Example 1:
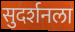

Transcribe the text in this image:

सुदर्शनला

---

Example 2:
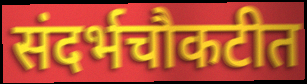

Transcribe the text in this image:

संदर्भचौकटीत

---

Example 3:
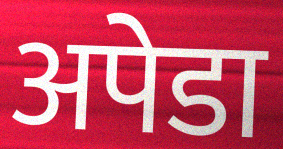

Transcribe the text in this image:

अपेडा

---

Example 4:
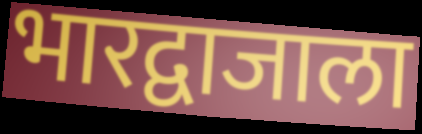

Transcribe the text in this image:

भारद्वाजाला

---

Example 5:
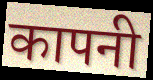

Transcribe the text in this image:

कापनी